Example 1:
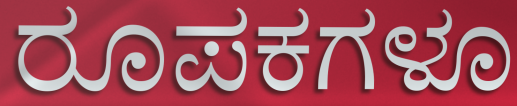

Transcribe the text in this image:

ರೂಪಕಗಳೂ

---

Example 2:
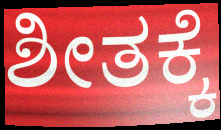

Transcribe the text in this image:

ಶೀತಕ್ಕೆ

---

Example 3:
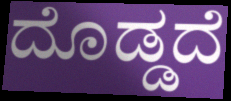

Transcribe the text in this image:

ದೊಡ್ಡದೆ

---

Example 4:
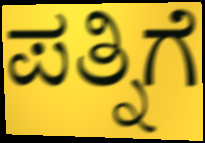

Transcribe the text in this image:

ಪತ್ನಿಗೆ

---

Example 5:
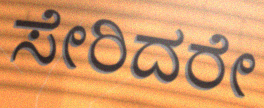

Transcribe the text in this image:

ಸೇರಿದರೇ